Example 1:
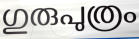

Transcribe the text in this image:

ഗുരുപുത്രം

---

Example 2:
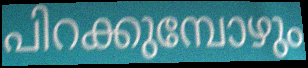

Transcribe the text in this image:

പിറക്കുമ്പോഴും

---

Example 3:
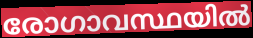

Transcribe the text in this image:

രോഗാവസ്ഥയിൽ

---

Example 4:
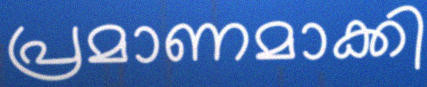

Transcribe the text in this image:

പ്രമാണമാക്കി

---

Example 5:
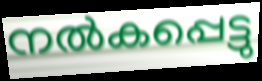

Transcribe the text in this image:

നൽകപ്പെട്ടു